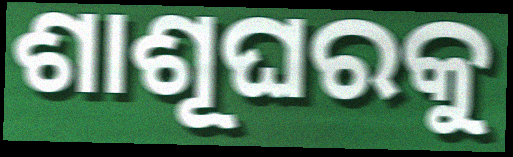
ଶାଶୂଘରକୁ